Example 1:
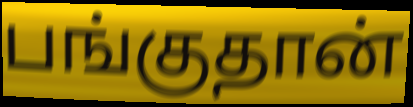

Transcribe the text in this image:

பங்குதான்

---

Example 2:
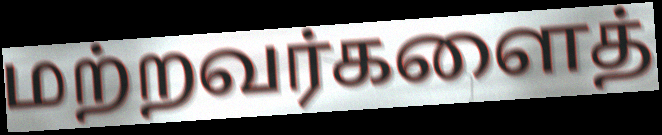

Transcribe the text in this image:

மற்றவர்களைத்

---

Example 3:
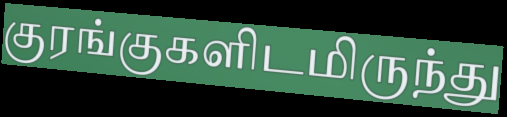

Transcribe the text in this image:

குரங்குகளிடமிருந்து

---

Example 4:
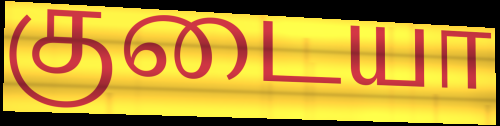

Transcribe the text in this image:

குடையா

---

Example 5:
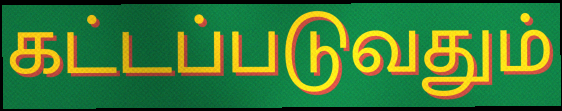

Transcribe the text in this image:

கட்டப்படுவதும்